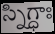
స్నిగ్ధాః